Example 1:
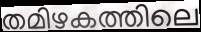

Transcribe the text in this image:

തമിഴകത്തിലെ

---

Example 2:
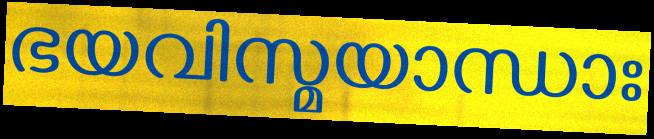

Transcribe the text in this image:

ഭയവിസ്മയാന്ധാഃ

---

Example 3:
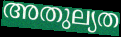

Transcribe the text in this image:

അതുല്യത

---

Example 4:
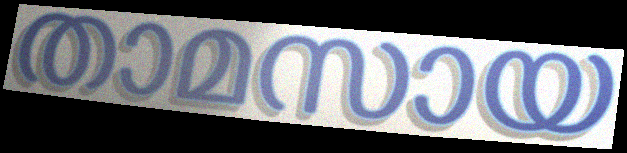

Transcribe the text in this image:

താമസായ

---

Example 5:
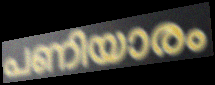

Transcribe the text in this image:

പണിയാരം